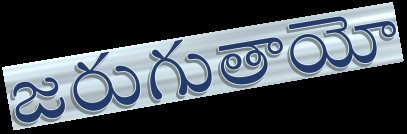
జరుగుతాయో